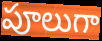
పూలుగా